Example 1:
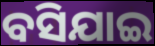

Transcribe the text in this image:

ବସିଯାଇ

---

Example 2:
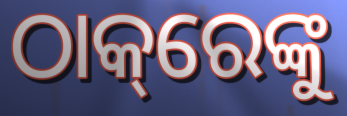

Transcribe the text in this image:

ଠାକ୍‌ରେଙ୍କୁ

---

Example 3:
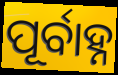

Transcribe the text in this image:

ପୂର୍ବାହ୍ନ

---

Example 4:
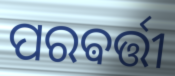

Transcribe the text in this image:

ପରଵର୍ତ୍ତୀ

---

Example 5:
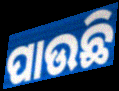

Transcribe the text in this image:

ପାଉଛି